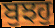
ਬੁਝਹੁ